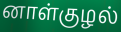
னாள்குழல்